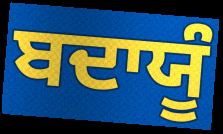
ਬਦਾਯੂੰ